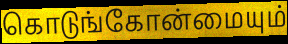
கொடுங்கோன்மையும்